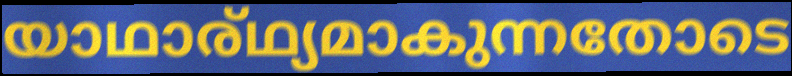
യാഥാര്ഥ്യമാകുന്നതോടെ